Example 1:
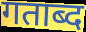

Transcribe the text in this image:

गताब्द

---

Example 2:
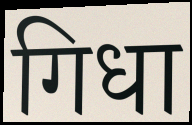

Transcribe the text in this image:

गिधा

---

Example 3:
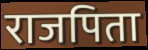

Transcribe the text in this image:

राजपिता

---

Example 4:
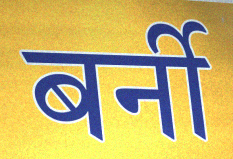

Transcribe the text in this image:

बर्नी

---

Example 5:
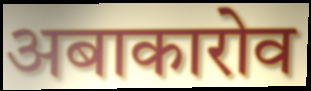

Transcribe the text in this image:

अबाकारोव